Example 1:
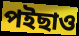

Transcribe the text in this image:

পইছাও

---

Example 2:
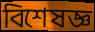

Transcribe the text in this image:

বিশেষজ্ঞ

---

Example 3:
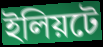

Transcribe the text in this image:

ইলিয়টে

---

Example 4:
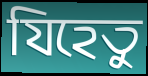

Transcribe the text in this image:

যিহেতু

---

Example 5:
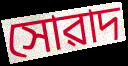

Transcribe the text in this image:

সোৱাদ